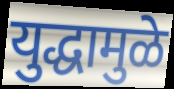
युद्धामुळे